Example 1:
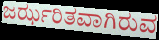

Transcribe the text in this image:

ಜರ್ಝರಿತವಾಗಿರುವ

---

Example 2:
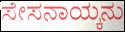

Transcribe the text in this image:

ಸೇಸನಾಯ್ಕನು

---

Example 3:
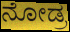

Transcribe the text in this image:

ನೋಡ್ರ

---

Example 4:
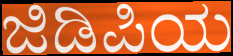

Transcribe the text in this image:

ಜಿಡಿಪಿಯ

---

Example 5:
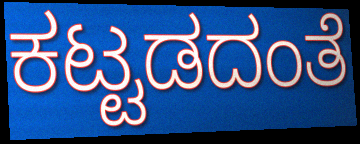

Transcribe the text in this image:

ಕಟ್ಟಡದಂತೆ